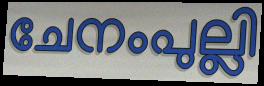
ചേനംപുല്ലി